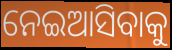
ନେଇଆସିବାକୁ